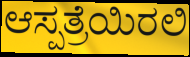
ಆಸ್ಪತ್ರೆಯಿರಲಿ